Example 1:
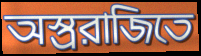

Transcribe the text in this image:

অস্ত্ররাজিতে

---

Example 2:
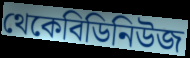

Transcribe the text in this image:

থেকেবিডিনিউজ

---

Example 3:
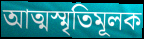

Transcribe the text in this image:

আত্মস্মৃতিমূলক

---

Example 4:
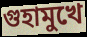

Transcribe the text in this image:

গুহামুখে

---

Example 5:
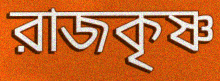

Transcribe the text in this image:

রাজকৃষ্ণ